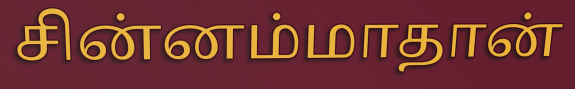
சின்னம்மாதான்